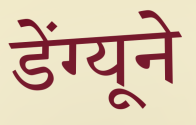
डेंग्यूने